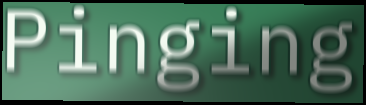
Pinging